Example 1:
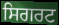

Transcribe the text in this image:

ਸਿਗਰਟ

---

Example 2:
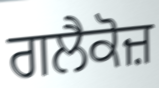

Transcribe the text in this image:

ਗਲੈਕੋਜ਼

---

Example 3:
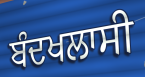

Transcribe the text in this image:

ਬੰਦਖਲਾਸੀ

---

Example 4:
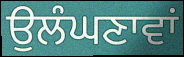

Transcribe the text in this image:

ਉਲੰਘਣਾਵਾਂ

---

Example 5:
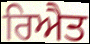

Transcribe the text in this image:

ਰਿਐਤ